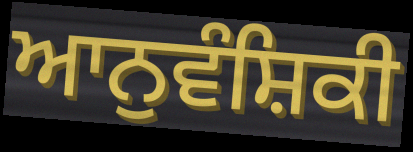
ਆਨੁਵੰਸ਼ਿਕੀ